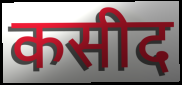
कसीद